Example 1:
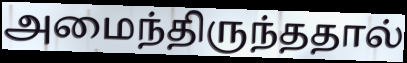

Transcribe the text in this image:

அமைந்திருந்ததால்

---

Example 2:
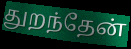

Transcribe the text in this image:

துறந்தேன்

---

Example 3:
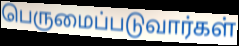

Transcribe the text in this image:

பெருமைப்படுவார்கள்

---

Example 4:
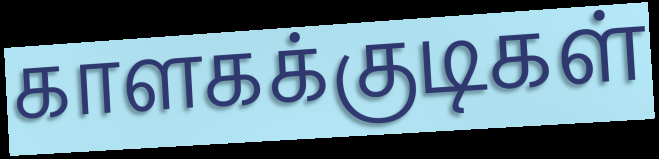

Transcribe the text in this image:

காளகக்குடிகள்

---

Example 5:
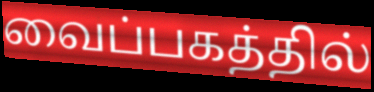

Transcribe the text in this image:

வைப்பகத்தில்